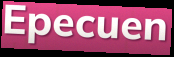
Epecuen